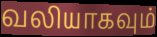
வலியாகவும்